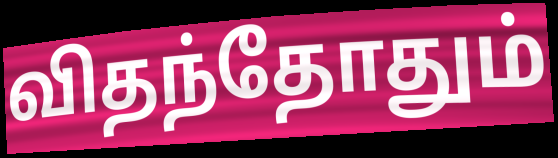
விதந்தோதும்